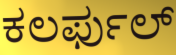
ಕಲರ್ಫುಲ್